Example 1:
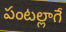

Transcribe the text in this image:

పంటల్లాగే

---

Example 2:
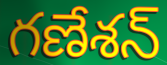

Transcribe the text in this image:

గణేశన్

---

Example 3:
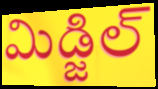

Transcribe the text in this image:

మిడ్జిల్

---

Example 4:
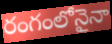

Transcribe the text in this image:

రంగంలోనైనా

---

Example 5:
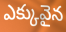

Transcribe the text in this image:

ఎక్కువైన